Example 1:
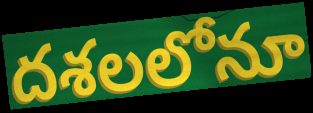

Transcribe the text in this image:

దశలలోనూ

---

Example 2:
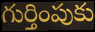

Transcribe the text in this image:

గుర్తింపుకు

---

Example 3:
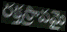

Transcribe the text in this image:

రక్తస్రావమై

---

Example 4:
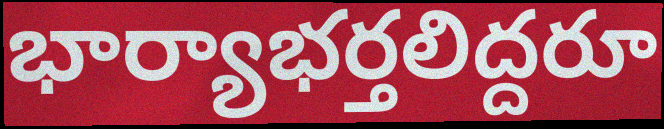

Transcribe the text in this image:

భార్యాభర్తలిద్దరూ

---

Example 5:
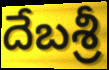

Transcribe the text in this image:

దేబశ్రీ